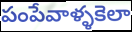
పంపేవాళ్ళకెలా